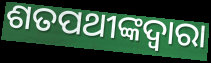
ଶତପଥୀଙ୍କଦ୍ୱାରା